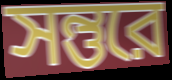
সন্তুরে